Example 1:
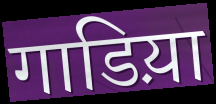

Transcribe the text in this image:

गाडिय़ा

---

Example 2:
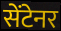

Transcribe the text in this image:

सेंटेनर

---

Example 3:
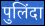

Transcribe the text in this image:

पुलिंदा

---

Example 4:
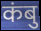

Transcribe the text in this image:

कंबु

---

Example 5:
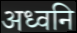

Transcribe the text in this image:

अध्वनि